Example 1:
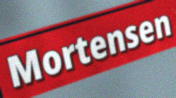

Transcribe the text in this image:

Mortensen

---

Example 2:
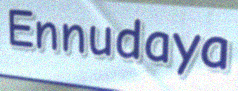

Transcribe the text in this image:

Ennudaya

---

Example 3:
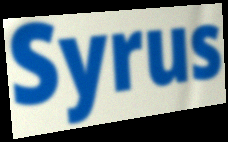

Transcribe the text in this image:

Syrus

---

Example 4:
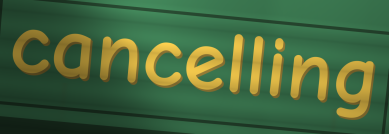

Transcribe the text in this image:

cancelling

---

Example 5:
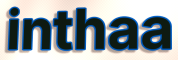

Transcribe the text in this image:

inthaa